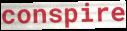
conspire